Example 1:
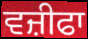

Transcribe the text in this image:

ਵਜ਼ੀਫਾ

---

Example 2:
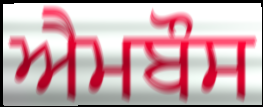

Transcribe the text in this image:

ਐਮਬੌਸ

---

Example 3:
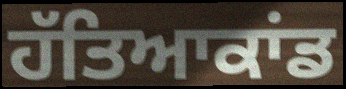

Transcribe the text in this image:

ਹੱਤਿਆਕਾਂਡ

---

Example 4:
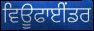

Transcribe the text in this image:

ਵਿਊਫਾਈਂਡਰ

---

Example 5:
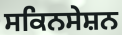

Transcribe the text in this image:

ਸਕਿਨਸੇਸ਼ਨ